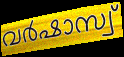
വർഷാസ്വ്